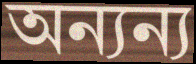
অন্যন্য